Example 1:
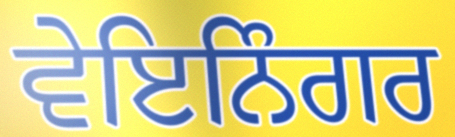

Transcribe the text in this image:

ਵੇਇਨਿੰਗਰ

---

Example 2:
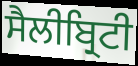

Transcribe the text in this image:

ਸੈਲੀਬ੍ਰਿਟੀ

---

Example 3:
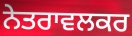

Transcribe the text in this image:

ਨੇਤਰਾਵਲਕਰ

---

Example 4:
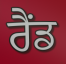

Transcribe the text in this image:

ਰੈਂਡ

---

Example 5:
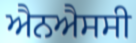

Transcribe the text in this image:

ਐਨਐਸਸੀ